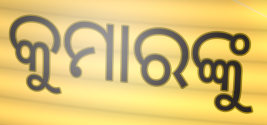
କୁମାରଙ୍କୁ